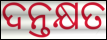
ଦନ୍ତକ୍ଷତ